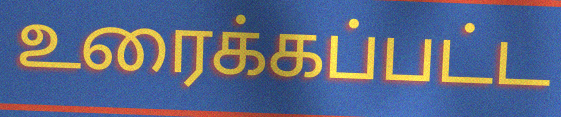
உரைக்கப்பட்ட